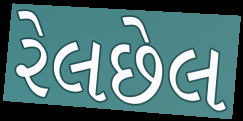
રેલછેલ